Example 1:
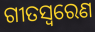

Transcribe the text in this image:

ଗୀତସ୍ବରେଣ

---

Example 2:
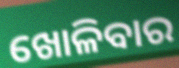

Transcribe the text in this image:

ଖୋଳିବାର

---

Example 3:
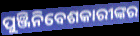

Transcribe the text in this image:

ପୁଞ୍ଜିନିବେଶକାରୀଙ୍କର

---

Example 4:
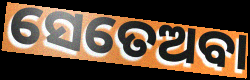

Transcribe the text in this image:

ସେତେଅବା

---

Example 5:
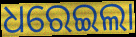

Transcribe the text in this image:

ଧରେଇଲା